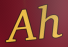
Ah